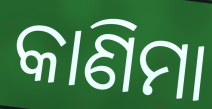
କାଣିମା